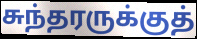
சுந்தரருக்குத்